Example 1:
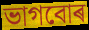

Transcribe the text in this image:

ভাগবোৰ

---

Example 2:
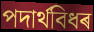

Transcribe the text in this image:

পদাৰ্থবিধৰ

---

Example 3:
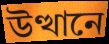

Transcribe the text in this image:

উত্থানে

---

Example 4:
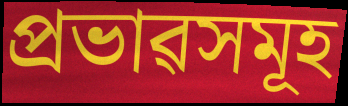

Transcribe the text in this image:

প্ৰভাৱসমূহ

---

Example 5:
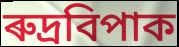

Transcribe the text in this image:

ৰুদ্ৰবিপাক